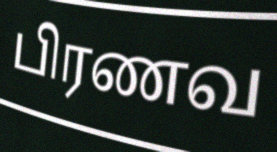
பிரணவ